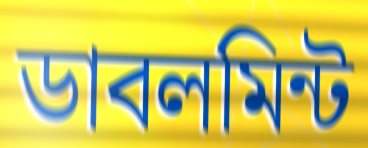
ডাবলমিন্ট